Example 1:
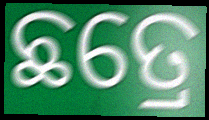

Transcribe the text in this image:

ଛତ୍ରେ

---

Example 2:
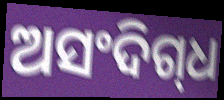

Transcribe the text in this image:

ଅସଂଦିଗ୍‌ଧ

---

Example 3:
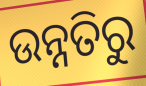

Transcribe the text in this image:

ଉନ୍ନତିରୁ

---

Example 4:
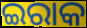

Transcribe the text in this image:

ଇରାକ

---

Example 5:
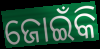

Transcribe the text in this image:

ଜୋଇଁକି